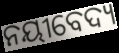
ନୟୀବେଦ୍ୟ